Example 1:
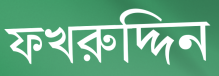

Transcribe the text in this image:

ফখরুদ্দিন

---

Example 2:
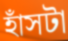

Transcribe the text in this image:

হাঁসটা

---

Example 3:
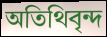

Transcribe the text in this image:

অতিথিবৃন্দ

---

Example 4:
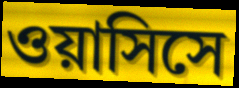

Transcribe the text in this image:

ওয়াসিসে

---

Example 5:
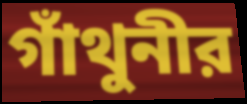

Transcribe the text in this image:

গাঁথুনীর